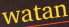
watan